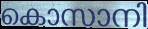
കൊസാനി